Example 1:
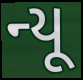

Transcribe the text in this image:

ન્યૂ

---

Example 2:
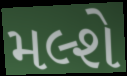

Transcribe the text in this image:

મલ્શે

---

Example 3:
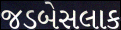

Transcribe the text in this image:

જડબેસલાક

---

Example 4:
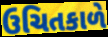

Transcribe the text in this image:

ઉચિતકાળે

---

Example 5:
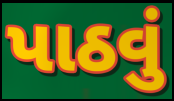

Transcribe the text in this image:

પાઠવું